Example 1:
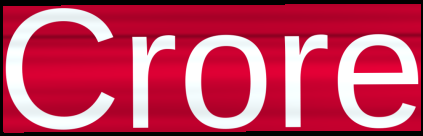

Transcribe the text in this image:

Crore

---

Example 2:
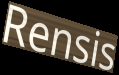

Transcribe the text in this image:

Rensis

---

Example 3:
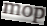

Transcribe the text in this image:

mop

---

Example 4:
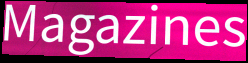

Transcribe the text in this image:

Magazines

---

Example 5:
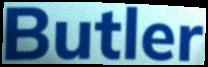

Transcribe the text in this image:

Butler